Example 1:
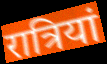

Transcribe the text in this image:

रात्रियां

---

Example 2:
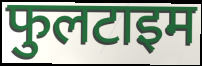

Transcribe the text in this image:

फुलटाइम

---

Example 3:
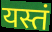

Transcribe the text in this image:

यस्तं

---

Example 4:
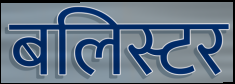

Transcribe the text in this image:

बलिस्टर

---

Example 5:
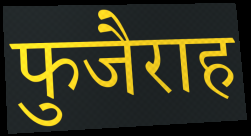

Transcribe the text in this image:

फुजैराह